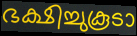
ഭക്ഷിച്ചുകൂടാ